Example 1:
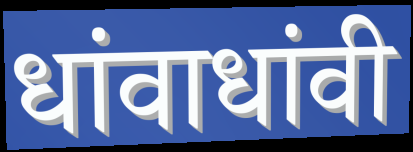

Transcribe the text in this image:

धांवाधांवी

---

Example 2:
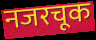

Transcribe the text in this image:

नजरचूक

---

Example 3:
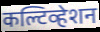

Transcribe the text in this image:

कल्टिव्हेशन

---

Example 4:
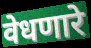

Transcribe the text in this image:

वेधणारे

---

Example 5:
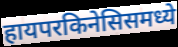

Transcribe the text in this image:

हायपरकिनेसिसमध्ये